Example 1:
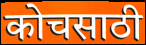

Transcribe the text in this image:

कोचसाठी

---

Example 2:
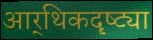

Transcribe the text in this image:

आर्थिकदृष्ट्या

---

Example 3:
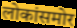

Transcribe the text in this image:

लोकांसमोर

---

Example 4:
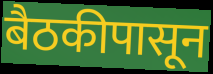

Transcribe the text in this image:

बैठकीपासून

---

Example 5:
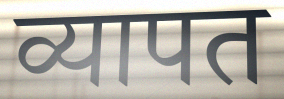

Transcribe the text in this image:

व्यापत